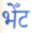
भेँट